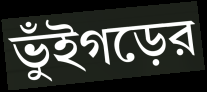
ভুঁইগড়ের